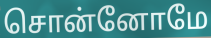
சொன்னோமே